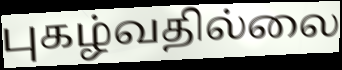
புகழ்வதில்லை